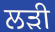
ਲਡ਼ੀ